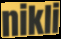
nikli